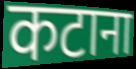
कटाना